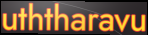
uththaravu